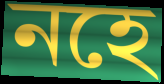
নহে